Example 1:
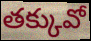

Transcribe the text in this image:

తక్కువో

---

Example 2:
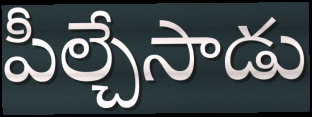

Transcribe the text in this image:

పీల్చేసాడు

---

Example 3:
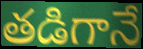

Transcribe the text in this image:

తడిగానే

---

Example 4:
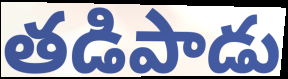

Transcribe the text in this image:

తడిపాడు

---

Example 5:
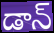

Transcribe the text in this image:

డాన్